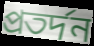
প্রতর্দন